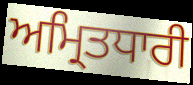
ਅਮ੍ਰਿਤਧਾਰੀ